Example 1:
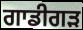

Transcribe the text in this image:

ਗਾਡੀਗੜ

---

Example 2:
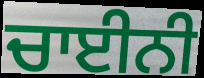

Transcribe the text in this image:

ਚਾਈਨੀ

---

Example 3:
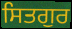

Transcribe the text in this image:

ਸਿਤਗੁਰ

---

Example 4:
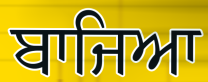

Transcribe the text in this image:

ਬਾਜਿਆ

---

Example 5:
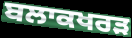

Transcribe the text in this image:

ਬਲਾਕਖਰੜ